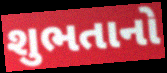
શુભતાનો